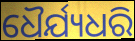
ଧୈର୍ଯ୍ୟଧରି